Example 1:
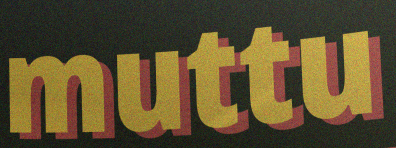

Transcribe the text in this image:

muttu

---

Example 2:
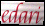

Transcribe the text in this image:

edari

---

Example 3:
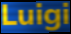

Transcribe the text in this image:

Luigi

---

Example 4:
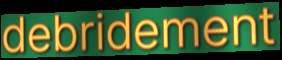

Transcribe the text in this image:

debridement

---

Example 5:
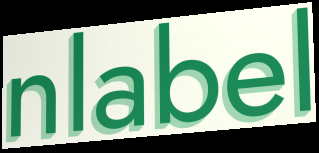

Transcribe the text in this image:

nlabel